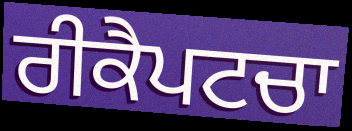
ਰੀਕੈਪਟਚਾ